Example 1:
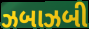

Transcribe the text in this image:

ઝબાઝબી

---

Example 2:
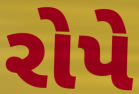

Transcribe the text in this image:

રોપે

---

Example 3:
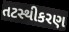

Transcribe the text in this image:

તટસ્થીકરણ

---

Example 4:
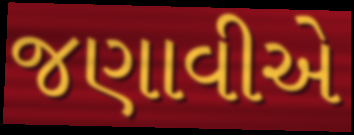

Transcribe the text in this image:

જણાવીએ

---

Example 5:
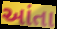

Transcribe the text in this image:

આંતા